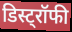
डिस्ट्रॉफी